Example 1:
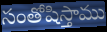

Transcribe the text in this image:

సంతోషిస్తాము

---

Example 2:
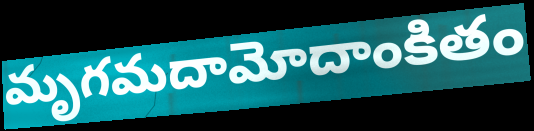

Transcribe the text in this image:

మృగమదామోదాంకితం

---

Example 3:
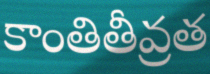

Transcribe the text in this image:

కాంతితీవ్రత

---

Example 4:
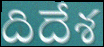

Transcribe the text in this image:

దిదేశ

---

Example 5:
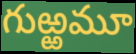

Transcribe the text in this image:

గుఱ్ఱమూ